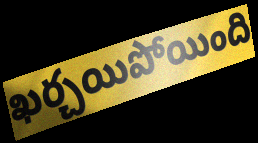
ఖర్చయిపోయింది